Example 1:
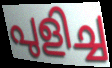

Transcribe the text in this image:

പുളിച്ച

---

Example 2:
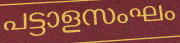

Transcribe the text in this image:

പട്ടാളസംഘം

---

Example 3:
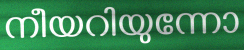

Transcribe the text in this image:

നീയറിയുന്നോ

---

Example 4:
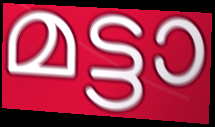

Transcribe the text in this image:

മട്ടാ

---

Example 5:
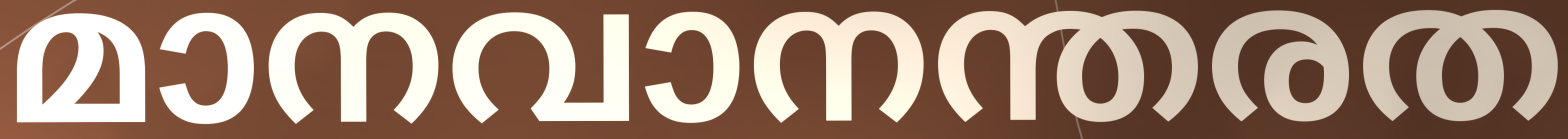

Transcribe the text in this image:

മാനവാനന്തരത